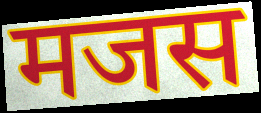
मजस